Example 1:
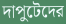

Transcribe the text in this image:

দাপুটেদের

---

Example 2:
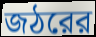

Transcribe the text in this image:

জঠরের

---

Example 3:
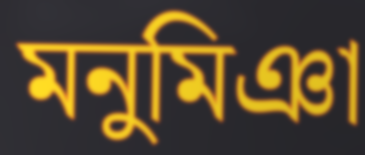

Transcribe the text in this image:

মনুমিঞা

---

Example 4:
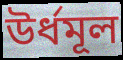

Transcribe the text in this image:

উর্ধমূল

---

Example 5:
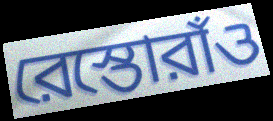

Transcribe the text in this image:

রেস্তোরাঁও